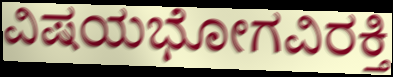
ವಿಷಯಭೋಗವಿರಕ್ತಿ